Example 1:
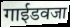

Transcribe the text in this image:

गाईडवजा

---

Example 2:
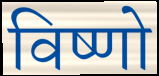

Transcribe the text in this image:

विष्णो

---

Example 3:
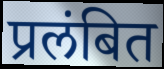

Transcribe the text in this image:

प्रलंबित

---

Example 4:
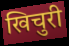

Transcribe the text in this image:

खिचुरी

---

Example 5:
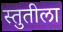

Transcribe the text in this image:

स्तुतीला